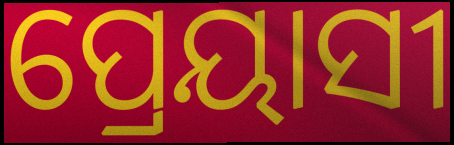
ପ୍ରେୟାସୀ